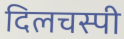
दिलचस्पी